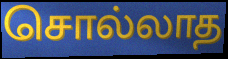
சொல்லாத